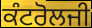
ਕੰਟਰੋਲਜੀ